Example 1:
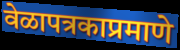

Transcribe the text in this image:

वेळापत्रकाप्रमाणे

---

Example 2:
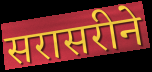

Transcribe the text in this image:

सरासरीने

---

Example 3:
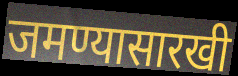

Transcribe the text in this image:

जमण्यासारखी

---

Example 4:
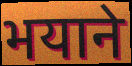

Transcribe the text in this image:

भयाने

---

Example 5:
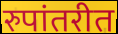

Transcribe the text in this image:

रुपांतरीत